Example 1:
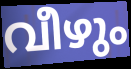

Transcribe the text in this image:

വീഴും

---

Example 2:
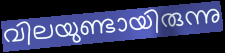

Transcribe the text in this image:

വിലയുണ്ടായിരുന്നു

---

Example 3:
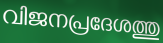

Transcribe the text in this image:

വിജനപ്രദേശത്തു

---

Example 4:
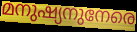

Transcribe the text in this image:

മനുഷ്യനുനേരെ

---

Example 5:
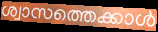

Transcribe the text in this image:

ശ്വാസത്തെക്കാൾ